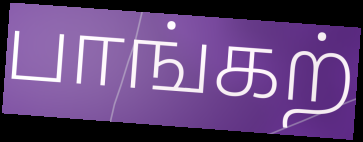
பாங்கற்